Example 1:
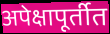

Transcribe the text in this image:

अपेक्षापूर्तीत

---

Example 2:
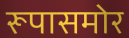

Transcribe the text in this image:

रूपासमोर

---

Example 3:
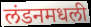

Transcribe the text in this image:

लंडनमधली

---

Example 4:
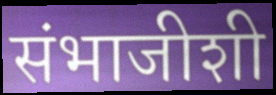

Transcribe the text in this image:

संभाजीशी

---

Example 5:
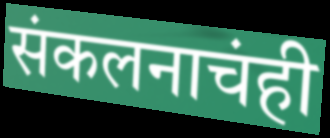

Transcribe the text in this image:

संकलनाचंही